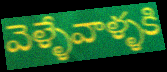
వెళ్ళేవాళ్ళకి